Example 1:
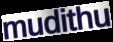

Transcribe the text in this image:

mudithu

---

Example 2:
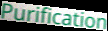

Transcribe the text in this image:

Purification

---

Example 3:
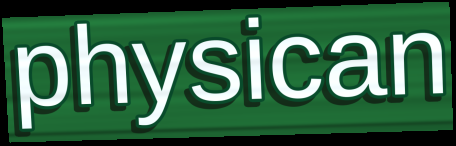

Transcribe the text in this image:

physican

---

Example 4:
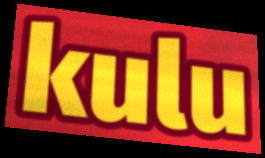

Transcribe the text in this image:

kulu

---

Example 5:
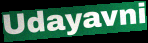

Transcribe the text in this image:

Udayavni